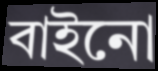
বাইনো